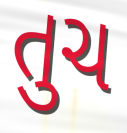
તુચ